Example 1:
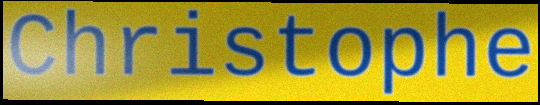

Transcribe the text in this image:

Christophe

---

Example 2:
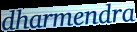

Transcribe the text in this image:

dharmendra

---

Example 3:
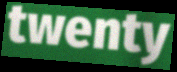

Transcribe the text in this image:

twenty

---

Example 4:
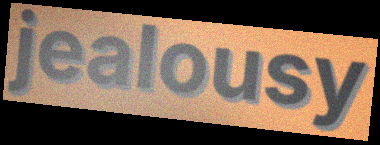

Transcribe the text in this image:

jealousy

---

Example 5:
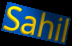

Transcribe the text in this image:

Sahil